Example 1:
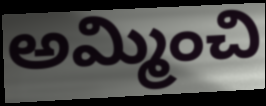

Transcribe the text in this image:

అమ్మించి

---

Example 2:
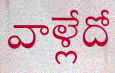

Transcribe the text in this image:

వాళ్లేదో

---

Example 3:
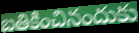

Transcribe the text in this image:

బతికించినందుకు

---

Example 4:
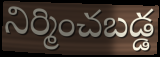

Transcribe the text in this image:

నిర్మించబడ్డ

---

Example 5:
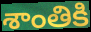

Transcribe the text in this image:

శాంతికి